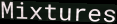
Mixtures